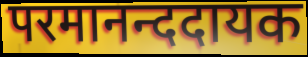
परमानन्ददायक